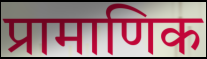
प्रामाणिक